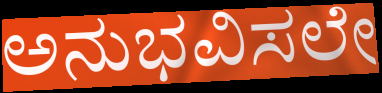
ಅನುಭವಿಸಲೇ